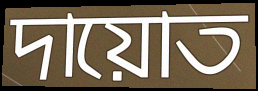
দায়োত